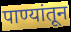
पाण्यांतून